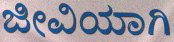
ಜೀವಿಯಾಗಿ